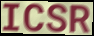
ICSR